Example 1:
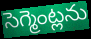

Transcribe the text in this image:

సెగ్మెంట్లను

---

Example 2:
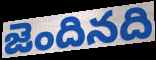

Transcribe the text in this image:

జెందినది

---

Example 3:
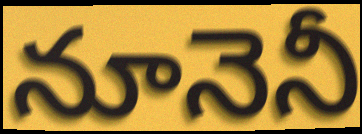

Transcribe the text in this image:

నూనెనీ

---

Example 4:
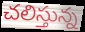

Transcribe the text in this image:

చలిస్తున్న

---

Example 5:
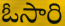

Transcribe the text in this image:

ఓసారి